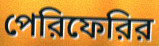
পেরিফেরির